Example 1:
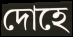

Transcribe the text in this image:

দোহে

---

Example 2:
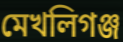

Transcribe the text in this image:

মেখলিগঞ্জ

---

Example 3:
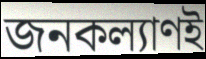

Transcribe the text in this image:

জনকল্যাণই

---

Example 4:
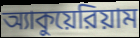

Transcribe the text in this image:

অ্যাকুয়েরিয়াম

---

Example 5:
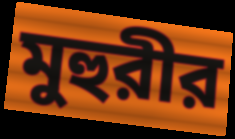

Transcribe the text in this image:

মুহুরীর